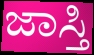
ಜಾಸ್ತಿ